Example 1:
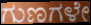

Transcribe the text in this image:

ಗುಣಗಳೇ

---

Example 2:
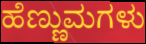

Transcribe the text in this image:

ಹೆಣ್ಣುಮಗಳು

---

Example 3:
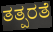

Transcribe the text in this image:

ತತ್ಪರತೆ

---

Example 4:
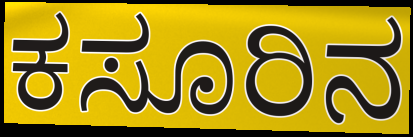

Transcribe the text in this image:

ಕಸೂರಿನ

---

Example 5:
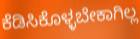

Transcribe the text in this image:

ಕೆಡಿಸಿಕೊಳ್ಳಬೇಕಾಗಿಲ್ಲ